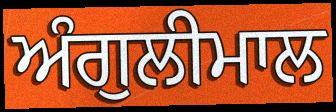
ਅੰਗੁਲੀਮਾਲ